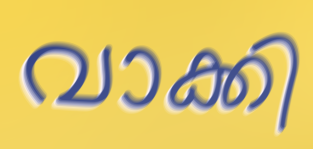
വാക്കി